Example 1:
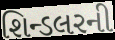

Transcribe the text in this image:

શિન્ડલરની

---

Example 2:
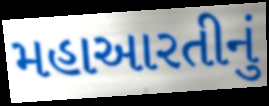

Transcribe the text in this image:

મહાઆરતીનું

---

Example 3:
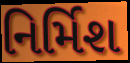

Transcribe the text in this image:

નિર્મિશ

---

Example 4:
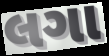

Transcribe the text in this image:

લગા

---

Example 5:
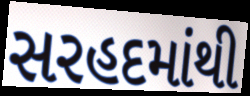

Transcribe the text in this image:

સરહદમાંથી